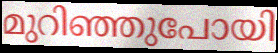
മുറിഞ്ഞുപോയി